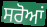
ਸਰੋਆਂ